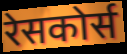
रेसकोर्स